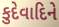
કુદેવાદિને